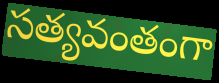
సత్యవంతంగా